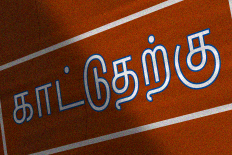
காட்டுதற்கு